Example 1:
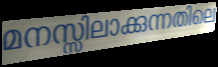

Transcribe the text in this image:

മനസ്സിലാക്കുന്നതിലെ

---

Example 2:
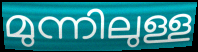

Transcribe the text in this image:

മുന്നിലുള്ള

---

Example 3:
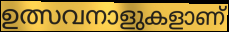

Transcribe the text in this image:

ഉത്സവനാളുകളാണ്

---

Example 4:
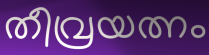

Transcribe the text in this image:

തീവ്രയത്നം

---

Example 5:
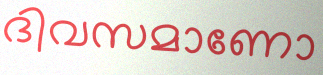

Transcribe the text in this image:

ദിവസമാണോ